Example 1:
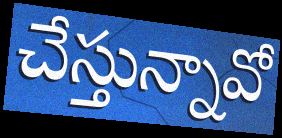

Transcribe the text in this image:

చేస్తున్నావో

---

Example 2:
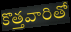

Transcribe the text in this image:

కొత్తవారితో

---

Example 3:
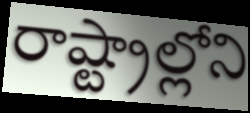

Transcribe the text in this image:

రాష్ట్రాల్లోని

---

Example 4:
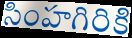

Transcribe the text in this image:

సింహగిరికి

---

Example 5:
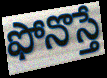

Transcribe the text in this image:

ఫోనొస్తే